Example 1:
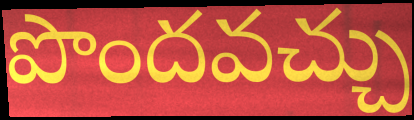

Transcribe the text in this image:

పొందవచ్చు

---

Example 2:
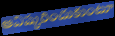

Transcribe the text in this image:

ఆవిష్కరించుకుంటూ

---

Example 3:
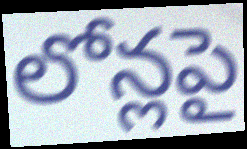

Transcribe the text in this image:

లోన్లపై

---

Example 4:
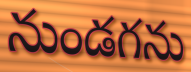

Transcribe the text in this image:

నుండగను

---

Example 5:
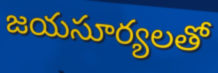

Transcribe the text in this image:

జయసూర్యలతో